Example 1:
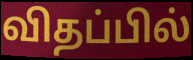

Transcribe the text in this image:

விதப்பில்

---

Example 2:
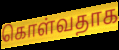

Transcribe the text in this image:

கொள்வதாக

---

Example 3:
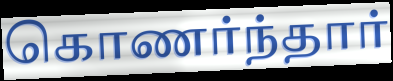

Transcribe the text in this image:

கொணர்ந்தார்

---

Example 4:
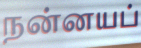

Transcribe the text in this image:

நன்னயப்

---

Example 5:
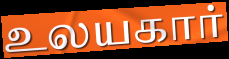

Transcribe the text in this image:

உலயகார்